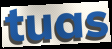
tuas